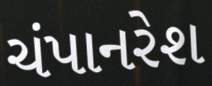
ચંપાનરેશ